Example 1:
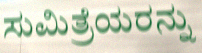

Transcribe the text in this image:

ಸುಮಿತ್ರೆಯರನ್ನು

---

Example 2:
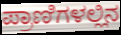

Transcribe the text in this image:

ಪ್ರಾಣಿಗಳಲ್ಲಿನ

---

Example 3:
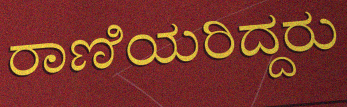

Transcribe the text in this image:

ರಾಣಿಯರಿದ್ದರು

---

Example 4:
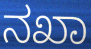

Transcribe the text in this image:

ನಖಾ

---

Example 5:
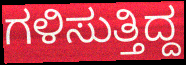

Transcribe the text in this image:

ಗಳಿಸುತ್ತಿದ್ದ